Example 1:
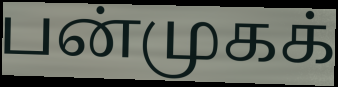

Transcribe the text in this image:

பன்முகக்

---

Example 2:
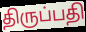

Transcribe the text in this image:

திருப்பதி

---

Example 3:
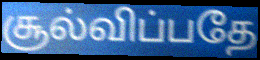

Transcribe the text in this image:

சூல்விப்பதே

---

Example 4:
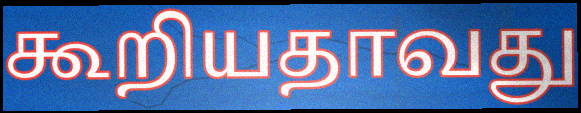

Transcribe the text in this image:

கூறியதாவது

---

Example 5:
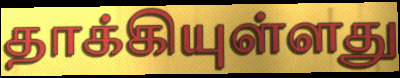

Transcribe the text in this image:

தாக்கியுள்ளது